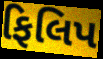
ફિલિપ